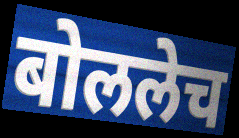
बोललेच